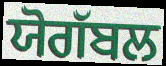
ਯੋਗੱਬਲ